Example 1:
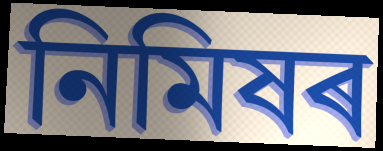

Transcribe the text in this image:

নিমিষৰ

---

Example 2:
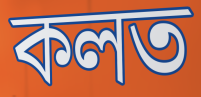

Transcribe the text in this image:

কলত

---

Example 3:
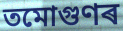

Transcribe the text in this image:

তমোগুণৰ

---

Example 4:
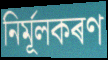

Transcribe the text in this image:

নিৰ্মূলকৰণ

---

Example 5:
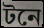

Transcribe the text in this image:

টনে